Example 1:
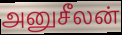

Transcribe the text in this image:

அனுசீலன்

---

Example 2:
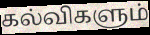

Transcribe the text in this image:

கல்விகளும்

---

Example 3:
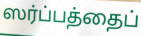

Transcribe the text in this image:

ஸர்ப்பத்தைப்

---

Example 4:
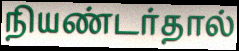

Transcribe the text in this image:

நியண்டர்தால்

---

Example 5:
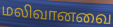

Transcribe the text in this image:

மலிவானவை